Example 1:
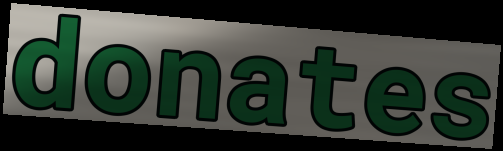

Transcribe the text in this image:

donates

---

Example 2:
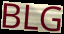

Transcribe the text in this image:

BLG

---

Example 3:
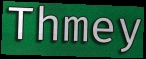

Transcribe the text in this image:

Thmey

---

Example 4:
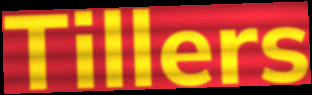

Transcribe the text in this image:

Tillers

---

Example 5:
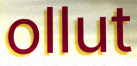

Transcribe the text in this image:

ollut